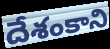
దేశంకాని